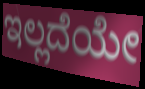
ಇಲ್ಲದೆಯೇ